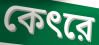
কেৎরে